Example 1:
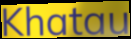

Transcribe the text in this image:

Khatau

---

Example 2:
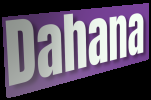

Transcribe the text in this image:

Dahana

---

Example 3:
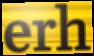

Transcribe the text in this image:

erh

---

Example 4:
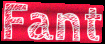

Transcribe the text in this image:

Fant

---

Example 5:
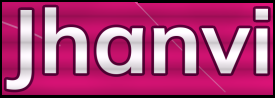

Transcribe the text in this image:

Jhanvi